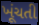
ખૂંચતી